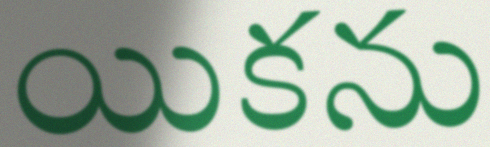
యికను